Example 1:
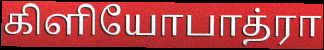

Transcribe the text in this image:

கிளியோபாத்ரா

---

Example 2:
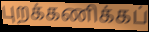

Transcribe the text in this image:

புறக்கணிக்கப்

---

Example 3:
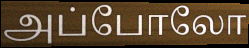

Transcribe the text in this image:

அப்போலோ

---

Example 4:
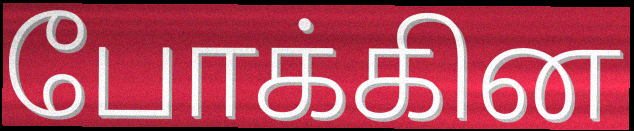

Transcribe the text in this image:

போக்கின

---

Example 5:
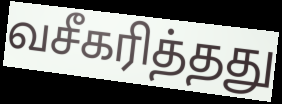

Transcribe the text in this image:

வசீகரித்தது